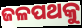
ଜଳପଥକୁ